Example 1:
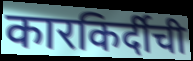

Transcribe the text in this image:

कारकिर्दीची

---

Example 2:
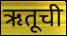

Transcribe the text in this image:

ॠतूची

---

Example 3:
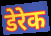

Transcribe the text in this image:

डेरेक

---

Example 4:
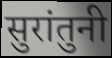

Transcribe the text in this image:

सुरांतुनी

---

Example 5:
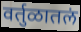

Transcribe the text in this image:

वर्तुळातलं